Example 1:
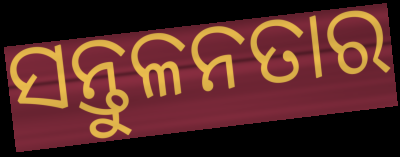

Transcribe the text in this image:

ସନ୍ତୁଳନତାର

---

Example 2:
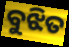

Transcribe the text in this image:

ବୁଝିତ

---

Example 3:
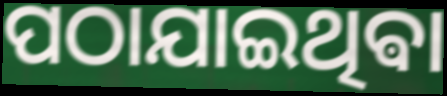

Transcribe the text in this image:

ପଠାଯାଇଥିଵା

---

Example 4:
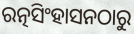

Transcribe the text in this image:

ରତ୍ନସିଂହାସନଠାରୁ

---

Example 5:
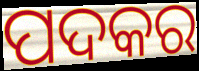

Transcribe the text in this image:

ପଦକର